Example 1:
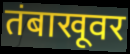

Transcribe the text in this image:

तंबाखूवर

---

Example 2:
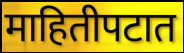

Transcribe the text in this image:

माहितीपटात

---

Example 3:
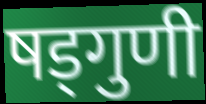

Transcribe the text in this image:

षड्गुणी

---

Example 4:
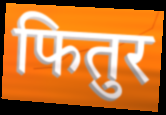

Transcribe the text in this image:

फितुर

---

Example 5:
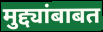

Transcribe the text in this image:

मुद्द्यांबाबत